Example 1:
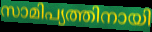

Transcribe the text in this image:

സാമിപ്യത്തിനായി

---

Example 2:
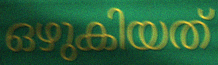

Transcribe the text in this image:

ഒഴുകിയത്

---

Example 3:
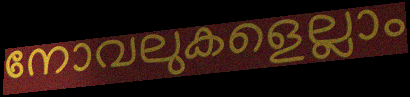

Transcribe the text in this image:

നോവലുകളെല്ലാം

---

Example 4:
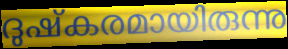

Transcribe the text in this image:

ദുഷ്‌കരമായിരുന്നു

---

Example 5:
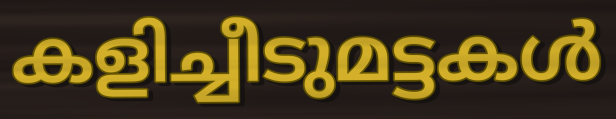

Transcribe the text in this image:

കളിച്ചീടുമട്ടകൾ